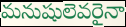
మనుషులెవరైనా